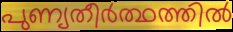
പുണ്യതീർത്ഥത്തിൽ